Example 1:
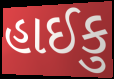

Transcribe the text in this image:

હાઈકુ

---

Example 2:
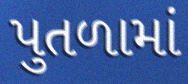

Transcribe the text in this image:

પુતળામાં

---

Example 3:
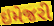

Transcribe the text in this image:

ઇમેજરી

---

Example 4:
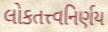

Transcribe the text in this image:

લોકતત્ત્વનિર્ણય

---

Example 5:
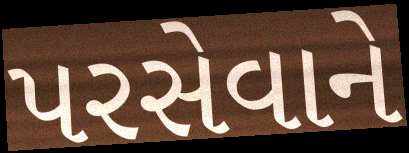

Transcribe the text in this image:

પરસેવાને